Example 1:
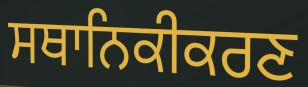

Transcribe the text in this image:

ਸਥਾਨਿਕੀਕਰਣ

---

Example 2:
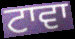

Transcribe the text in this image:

ਟਾਵਾ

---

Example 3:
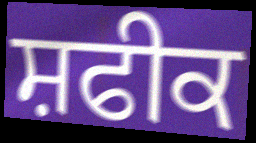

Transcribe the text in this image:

ਸ਼ਫੀਕ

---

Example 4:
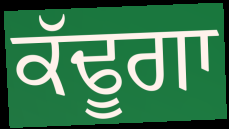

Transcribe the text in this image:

ਕੱਢੂਗਾ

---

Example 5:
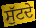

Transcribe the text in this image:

ਸੁੱਟਦੇ